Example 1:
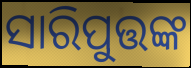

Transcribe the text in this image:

ସାରିପୁତ୍ତଙ୍କ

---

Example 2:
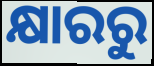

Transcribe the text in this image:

କ୍ଷାରରୁ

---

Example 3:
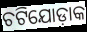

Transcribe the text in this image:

ଚଟିଯୋଡ଼ାକ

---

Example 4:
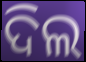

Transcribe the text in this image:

ଦିଲ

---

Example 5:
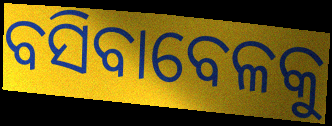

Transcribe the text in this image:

ବସିବାବେଳକୁ